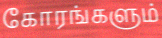
கோரங்களும்